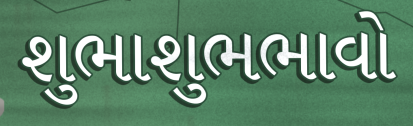
શુભાશુભભાવો